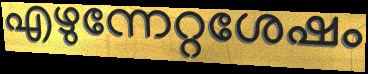
എഴുന്നേറ്റശേഷം